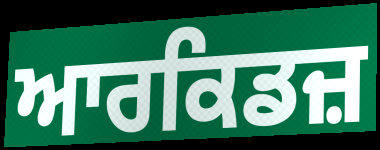
ਆਰਕਿਡਜ਼